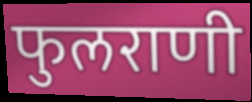
फुलराणी